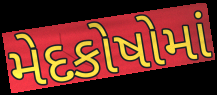
મેદકોષોમાં